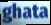
ghata